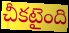
చీకటైంది